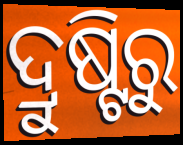
ଦ୍ରୁଷ୍ଟିରୁ